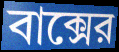
বাক্সের